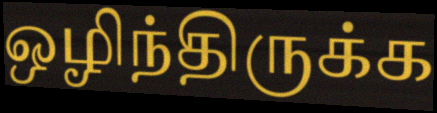
ஒழிந்திருக்க